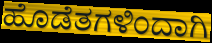
ಹೊಡೆತಗಳಿಂದಾಗಿ